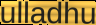
ulladhu